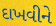
દાખવીને